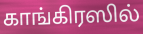
காங்கிரஸில்